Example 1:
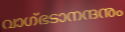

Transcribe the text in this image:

വാഗ്ഭടാനന്ദനും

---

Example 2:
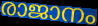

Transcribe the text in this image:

രാജാനം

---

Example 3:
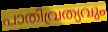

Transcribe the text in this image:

പാതിവ്രത്യവും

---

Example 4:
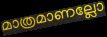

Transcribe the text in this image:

മാത്രമാണല്ലോ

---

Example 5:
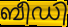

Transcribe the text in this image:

ബീഡി